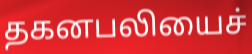
தகனபலியைச்